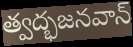
త్వద్భజనవాన్